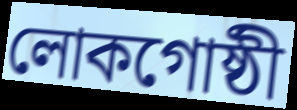
লোকগোষ্ঠী